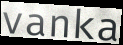
vanka